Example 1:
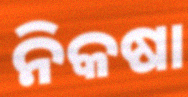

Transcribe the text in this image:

ନିକଷା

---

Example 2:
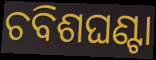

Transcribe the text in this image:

ଚବିଶଘଣ୍ଟା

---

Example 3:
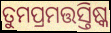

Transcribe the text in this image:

ତୁମପ୍ରମତ୍ତସ୍ତିଷ୍କ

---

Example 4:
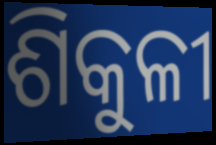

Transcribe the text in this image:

ଶିକୁଳୀ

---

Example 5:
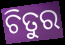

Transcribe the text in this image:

ଚିତୁର